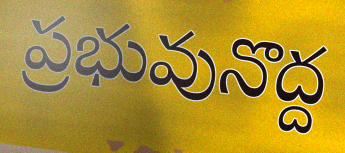
ప్రభువునొద్ద